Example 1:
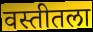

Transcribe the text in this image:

वस्तीतला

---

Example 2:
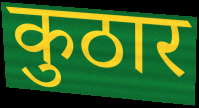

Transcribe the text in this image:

कुठार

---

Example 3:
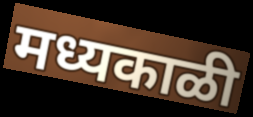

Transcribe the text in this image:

मध्यकाळी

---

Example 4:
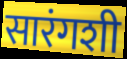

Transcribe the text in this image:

सारंगशी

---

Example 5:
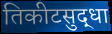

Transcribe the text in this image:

तिकीटसुद्धा